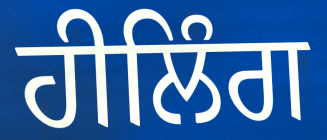
ਹੀਲਿੰਗ